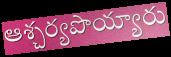
ఆశ్చర్యపొయ్యారు